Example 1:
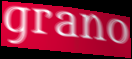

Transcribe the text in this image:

grano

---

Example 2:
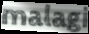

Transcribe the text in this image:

malagi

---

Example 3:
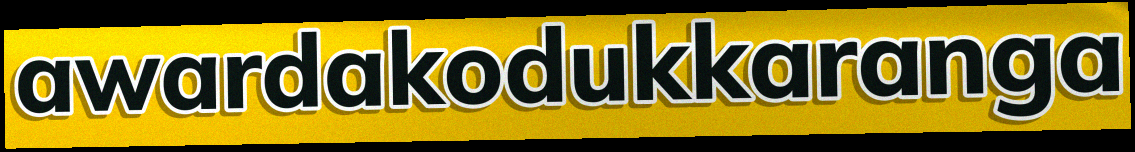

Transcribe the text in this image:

awardakodukkaranga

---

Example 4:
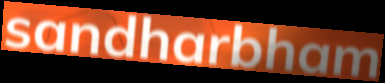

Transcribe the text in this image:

sandharbham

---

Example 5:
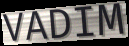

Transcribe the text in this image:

VADIM